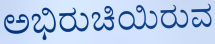
ಅಭಿರುಚಿಯಿರುವ